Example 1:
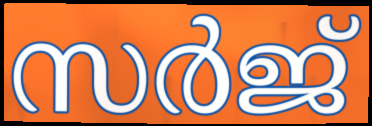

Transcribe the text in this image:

സർജ്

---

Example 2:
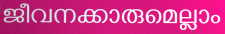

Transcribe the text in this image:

ജീവനക്കാരുമെല്ലാം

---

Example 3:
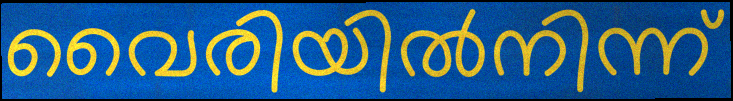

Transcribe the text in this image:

വൈരിയിൽനിന്ന്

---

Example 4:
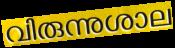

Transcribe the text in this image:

വിരുന്നുശാല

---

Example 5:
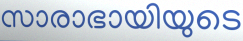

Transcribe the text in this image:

സാരാഭായിയുടെ